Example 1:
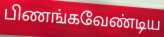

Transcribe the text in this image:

பிணங்கவேண்டிய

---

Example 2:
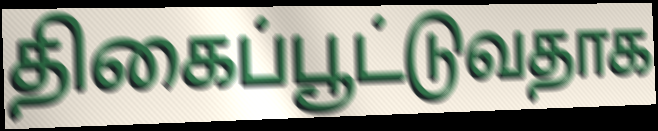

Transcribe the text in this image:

திகைப்பூட்டுவதாக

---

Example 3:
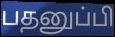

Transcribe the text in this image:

பதனுப்பி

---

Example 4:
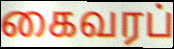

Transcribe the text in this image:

கைவரப்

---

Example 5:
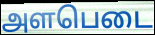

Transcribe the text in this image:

அளபெடை